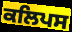
ਕਲਿਪਸ